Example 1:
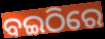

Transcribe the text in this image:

ବଇଠିରେ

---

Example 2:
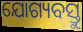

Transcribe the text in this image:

ଯୋଗ୍ୟବସ୍ତୁ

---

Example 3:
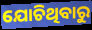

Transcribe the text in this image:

ଯୋଚିଥିବାରୁ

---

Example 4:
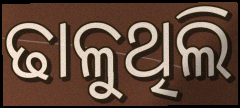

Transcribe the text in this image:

ଢାଳୁଥିଲି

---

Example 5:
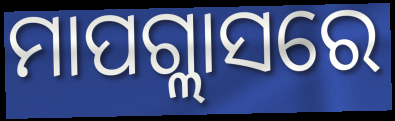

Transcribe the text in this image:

ମାପଗ୍ଲାସରେ